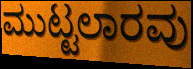
ಮುಟ್ಟಲಾರವು